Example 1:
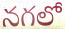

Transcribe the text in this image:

నగలో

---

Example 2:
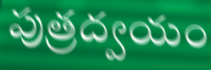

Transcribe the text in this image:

పుత్రద్వయం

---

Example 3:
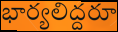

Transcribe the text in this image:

భార్యలిద్దరూ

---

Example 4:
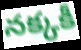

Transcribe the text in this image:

నక్కకీ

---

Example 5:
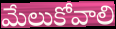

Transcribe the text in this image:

మేలుకోవాలి